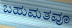
ಬಹುಮತವೂ